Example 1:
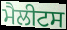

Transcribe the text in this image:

ਮੈਲੀਟਸ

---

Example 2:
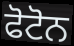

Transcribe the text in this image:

ਫੋਟੋਨ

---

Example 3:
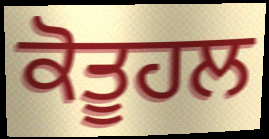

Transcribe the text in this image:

ਕੋਤੂਹਲ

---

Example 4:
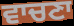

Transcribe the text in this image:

ਵਾਚਣਾ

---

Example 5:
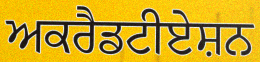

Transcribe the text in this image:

ਅਕਰੈਡਟੀਏਸ਼ਨ